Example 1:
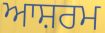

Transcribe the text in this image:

ਆਸ਼ਰਮ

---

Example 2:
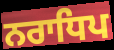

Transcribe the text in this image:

ਨਰਾਧਿਪ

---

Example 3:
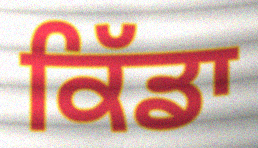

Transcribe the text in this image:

ਕਿੱਡਾ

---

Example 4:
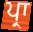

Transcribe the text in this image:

ਪ੍ਰਾ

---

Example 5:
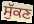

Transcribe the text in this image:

ਸੁੱਕਣ